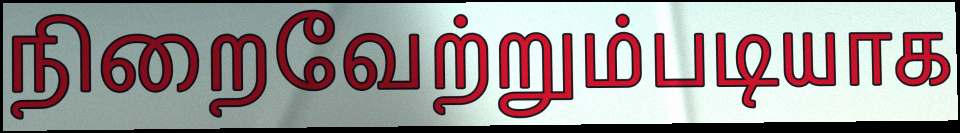
நிறைவேற்றும்படியாக